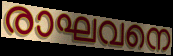
രാഘവനെ